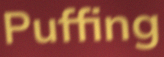
Puffing